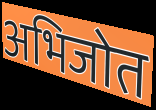
अभिजोत